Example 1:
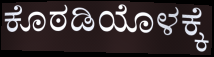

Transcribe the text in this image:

ಕೊಠಡಿಯೊಳಕ್ಕೆ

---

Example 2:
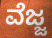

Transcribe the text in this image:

ವೆಜ್ಜ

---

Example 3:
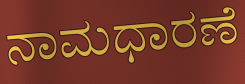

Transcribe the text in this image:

ನಾಮಧಾರಣೆ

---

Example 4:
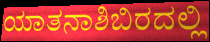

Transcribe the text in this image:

ಯಾತನಾಶಿಬಿರದಲ್ಲಿ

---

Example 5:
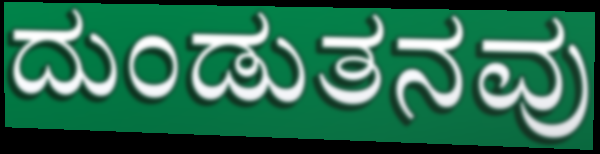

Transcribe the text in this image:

ದುಂಡುತನವು